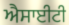
ਐਸਾਈਟੀ